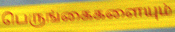
பெருங்கைகளையும்